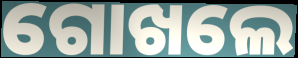
ଗୋଖଲେ